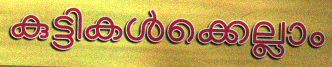
കുട്ടികൾക്കെല്ലാം